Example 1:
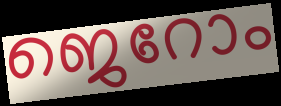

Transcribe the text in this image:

ജെറോം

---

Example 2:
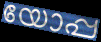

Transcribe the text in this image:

യോപ്പ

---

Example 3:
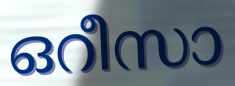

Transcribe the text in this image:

ഒറീസാ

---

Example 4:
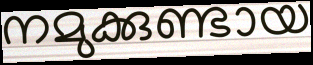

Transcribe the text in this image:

നമുക്കുണ്ടായ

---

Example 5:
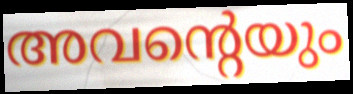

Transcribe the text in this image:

അവന്റെയും